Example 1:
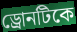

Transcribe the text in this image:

ড্রোনটিকে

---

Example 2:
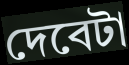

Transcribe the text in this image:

দেবেটা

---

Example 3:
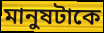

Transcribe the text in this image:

মানুষটাকে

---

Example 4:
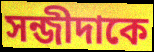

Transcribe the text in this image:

সন্জীদাকে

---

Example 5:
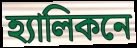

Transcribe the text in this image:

হ্যালিকনে